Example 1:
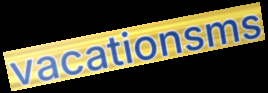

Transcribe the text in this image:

vacationsms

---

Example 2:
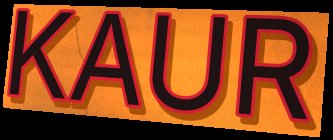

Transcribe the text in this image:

KAUR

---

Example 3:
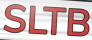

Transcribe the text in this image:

SLTB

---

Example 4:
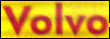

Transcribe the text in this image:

Volvo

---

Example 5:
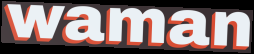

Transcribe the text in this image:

waman